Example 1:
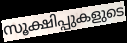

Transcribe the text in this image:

സൂക്ഷിപ്പുകളുടെ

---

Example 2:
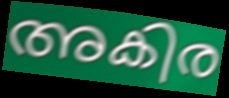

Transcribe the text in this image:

അകിര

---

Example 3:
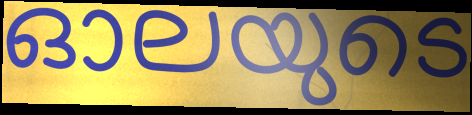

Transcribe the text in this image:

ഓലയുടെ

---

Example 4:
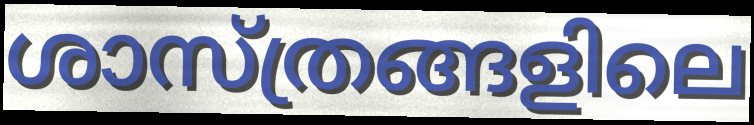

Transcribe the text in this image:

ശാസ്ത്രങ്ങളിലെ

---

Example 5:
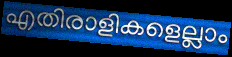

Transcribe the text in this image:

എതിരാളികളെല്ലാം